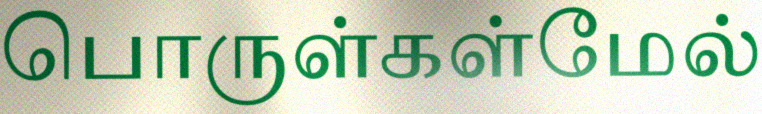
பொருள்கள்மேல்